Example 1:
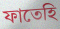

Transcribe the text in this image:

ফাতেহি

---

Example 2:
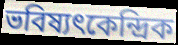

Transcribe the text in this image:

ভবিষ্যৎকেন্দ্রিক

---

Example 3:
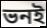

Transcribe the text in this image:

ভনই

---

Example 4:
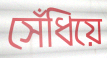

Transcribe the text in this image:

সেঁধিয়ে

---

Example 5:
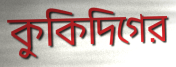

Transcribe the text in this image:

কুকিদিগের